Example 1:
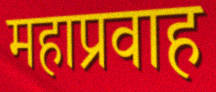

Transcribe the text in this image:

महाप्रवाह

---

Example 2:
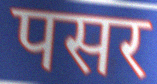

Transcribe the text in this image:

पसर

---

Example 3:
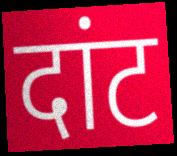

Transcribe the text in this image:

दांट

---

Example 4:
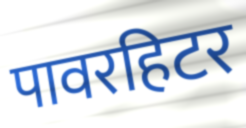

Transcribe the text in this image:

पावरहिटर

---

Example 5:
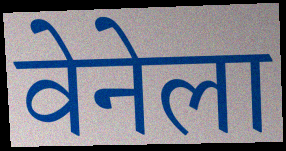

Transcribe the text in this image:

वेनेला